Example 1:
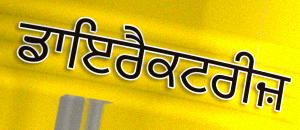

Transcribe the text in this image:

ਡਾਇਰੈਕਟਰੀਜ਼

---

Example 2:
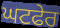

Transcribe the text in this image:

ਘਟਫੇਰ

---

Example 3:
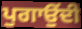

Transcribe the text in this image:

ਪੁਗਾਉਂਦੀ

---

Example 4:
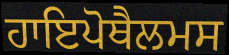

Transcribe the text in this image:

ਹਾਇਪੋਥੈਲਮਸ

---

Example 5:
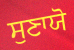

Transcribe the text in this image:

ਸੁਣਾਯੋ